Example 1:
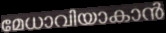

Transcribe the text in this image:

മേധാവിയാകാൻ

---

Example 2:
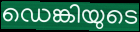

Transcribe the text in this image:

ഡെങ്കിയുടെ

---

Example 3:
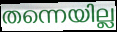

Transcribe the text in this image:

തന്നെയില്ല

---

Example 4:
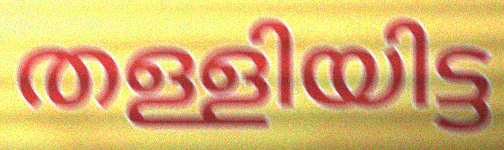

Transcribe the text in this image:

തള്ളിയിട്ട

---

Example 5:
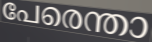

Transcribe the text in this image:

പേരെന്താ